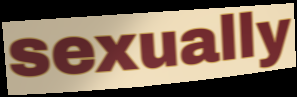
sexually